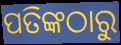
ପତିଙ୍କଠାରୁ